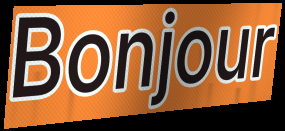
Bonjour